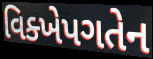
વિક્ખેપગતેન